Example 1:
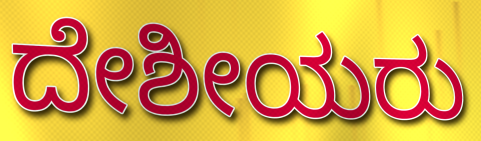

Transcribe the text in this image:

ದೇಶೀಯರು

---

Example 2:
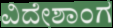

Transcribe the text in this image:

ವಿದೇಶಾಂಗ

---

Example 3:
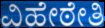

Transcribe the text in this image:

ವಿಹೇಠೇತಿ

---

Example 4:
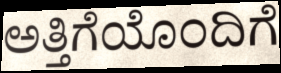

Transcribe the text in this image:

ಅತ್ತಿಗೆಯೊಂದಿಗೆ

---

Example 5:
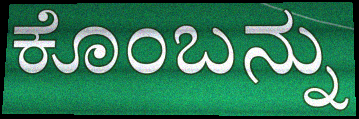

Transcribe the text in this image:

ಕೊಂಬನ್ನು